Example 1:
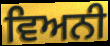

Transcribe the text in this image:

ਵਿਅਨੀ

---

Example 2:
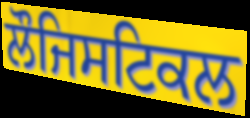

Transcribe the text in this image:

ਲੌਜਿਸਟਿਕਲ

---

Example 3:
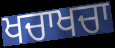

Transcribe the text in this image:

ਖਚਾਖਚਾ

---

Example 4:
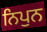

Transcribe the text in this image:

ਨਿਪੁਨ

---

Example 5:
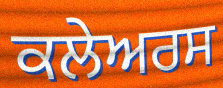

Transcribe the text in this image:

ਕਲੇਅਰਸ